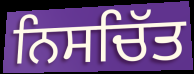
ਨਿਸਚਿੱਤ